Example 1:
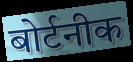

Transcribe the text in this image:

बोर्टनीक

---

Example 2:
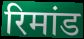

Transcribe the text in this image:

रिमांड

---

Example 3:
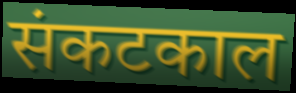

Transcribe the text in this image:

संकटकाल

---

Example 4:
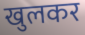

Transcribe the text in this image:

खुलकर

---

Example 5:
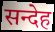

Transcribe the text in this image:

सन्देह